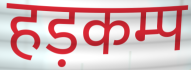
हड़कम्‍प